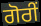
ਗੋਰੀਂ